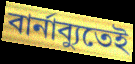
বার্নাব্যুতেই